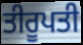
ਤੀਰੂਪਤੀ